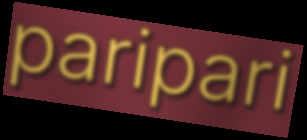
paripari